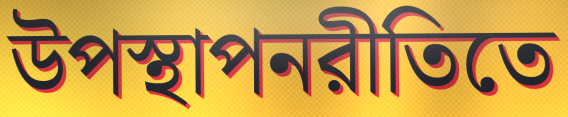
উপস্থাপনরীতিতে